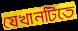
যেখানটিতে